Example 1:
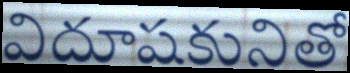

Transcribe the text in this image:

విదూషకునితో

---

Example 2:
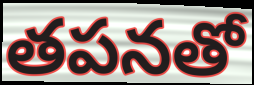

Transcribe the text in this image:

తపనతో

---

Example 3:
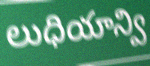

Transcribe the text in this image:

లుధియాన్వి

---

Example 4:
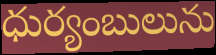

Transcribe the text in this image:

ధుర్యంబులును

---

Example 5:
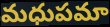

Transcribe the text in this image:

మధుపమా